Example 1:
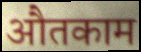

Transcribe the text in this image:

औतकाम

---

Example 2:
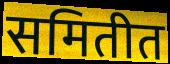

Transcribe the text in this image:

समितीत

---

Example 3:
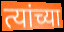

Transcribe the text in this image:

त्यांच्या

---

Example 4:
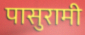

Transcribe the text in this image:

पासुरामी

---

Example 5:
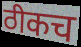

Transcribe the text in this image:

ठीकच